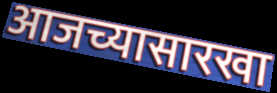
आजच्यासारखा